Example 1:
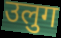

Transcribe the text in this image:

उलुग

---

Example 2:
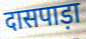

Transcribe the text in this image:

दासपाड़ा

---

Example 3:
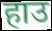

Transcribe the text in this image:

हाउ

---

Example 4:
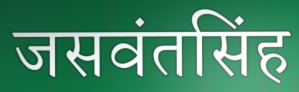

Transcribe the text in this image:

जसवंतसिंह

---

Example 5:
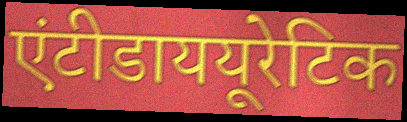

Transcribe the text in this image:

एंटीडाययूरेटिक